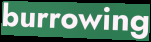
burrowing